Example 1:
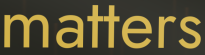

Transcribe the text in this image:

matters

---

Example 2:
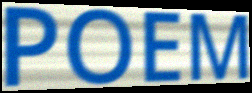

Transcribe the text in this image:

POEM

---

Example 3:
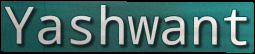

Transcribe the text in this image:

Yashwant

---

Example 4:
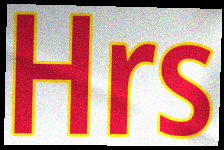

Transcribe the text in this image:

Hrs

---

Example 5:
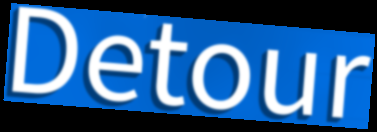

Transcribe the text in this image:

Detour